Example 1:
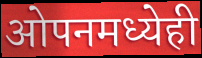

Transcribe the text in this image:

ओपनमध्येही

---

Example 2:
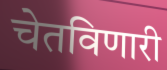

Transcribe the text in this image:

चेतविणारी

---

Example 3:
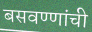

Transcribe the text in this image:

बसवण्णांची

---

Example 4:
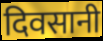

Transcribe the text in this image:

दिवसानी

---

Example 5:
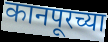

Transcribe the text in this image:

कानपूरच्या